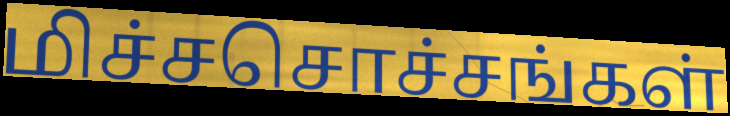
மிச்சசொச்சங்கள்